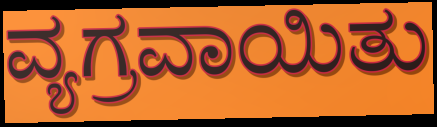
ವ್ಯಗ್ರವಾಯಿತು